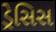
ડ્રેસિસ